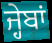
ਜ੍ਹੇਬਾਂ